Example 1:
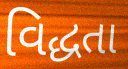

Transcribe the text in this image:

વિદ્ધતા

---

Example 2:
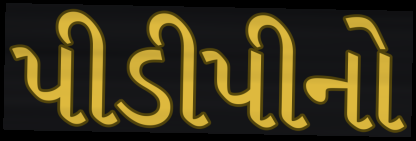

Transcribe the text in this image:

પીડીપીનો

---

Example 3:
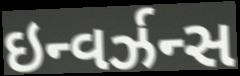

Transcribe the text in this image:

ઇન્વર્ઝન્સ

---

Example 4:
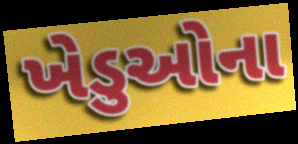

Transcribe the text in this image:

ખેડુઓના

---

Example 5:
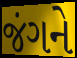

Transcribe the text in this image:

જંગને